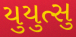
યુયુત્સુ